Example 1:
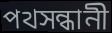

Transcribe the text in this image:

পথসন্ধানী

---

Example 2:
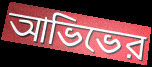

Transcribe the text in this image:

আভিভের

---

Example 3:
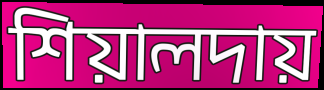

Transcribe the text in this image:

শিয়ালদায়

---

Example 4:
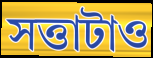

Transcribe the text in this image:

সত্তাটাও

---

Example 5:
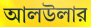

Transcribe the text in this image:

আলউলার